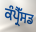
ਕੰਪ੍ਰੈੱਸਡ